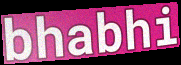
bhabhi